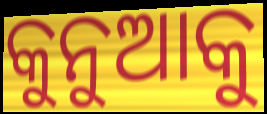
କୁନୁଆକୁ